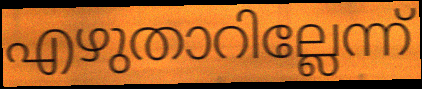
എഴുതാറില്ലേന്ന്